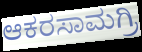
ಆಕರಸಾಮಗ್ರಿ